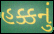
હક્કનું